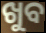
ଖୁବ